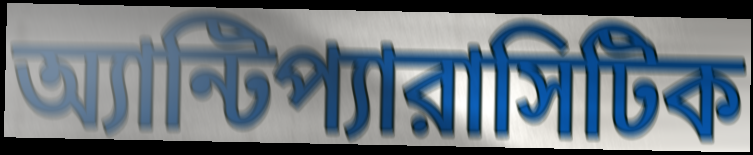
অ্যান্টিপ্যারাসিটিক